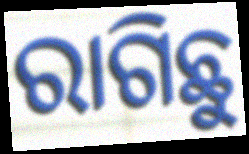
ରାଗିଛୁ